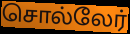
சொல்லேர்